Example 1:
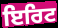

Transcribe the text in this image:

ਇਰਿਟ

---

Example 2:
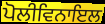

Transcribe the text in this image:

ਪੋਲੀਵਿਨਾਇਲ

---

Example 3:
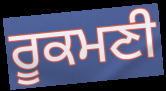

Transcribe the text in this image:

ਰੂਕਮਣੀ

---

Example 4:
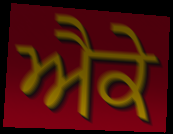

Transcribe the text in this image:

ਐਕੇ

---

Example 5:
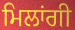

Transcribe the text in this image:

ਮਿਲਾਂਗੀ